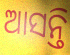
ଆସନ୍ତି